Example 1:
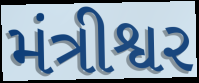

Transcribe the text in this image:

મંત્રીશ્વર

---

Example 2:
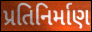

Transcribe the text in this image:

પ્રતિનિર્માણ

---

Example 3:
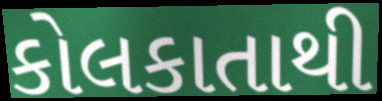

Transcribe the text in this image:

કોલકાતાથી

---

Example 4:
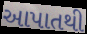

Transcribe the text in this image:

આપાતથી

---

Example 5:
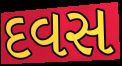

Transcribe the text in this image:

દવસ